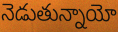
నెడుతున్నాయో